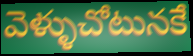
వెళ్ళుచోటునకే